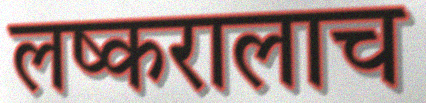
लष्करालाच